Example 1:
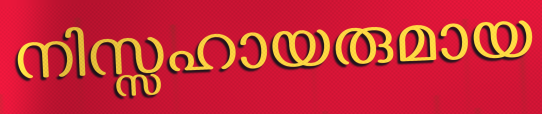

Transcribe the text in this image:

നിസ്സഹായരുമായ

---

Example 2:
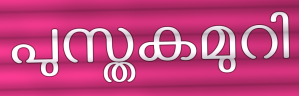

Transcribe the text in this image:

പുസ്തകമുറി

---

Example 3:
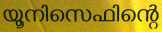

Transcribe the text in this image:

യൂനിസെഫിന്റെ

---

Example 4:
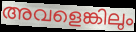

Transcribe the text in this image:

അവളെങ്കിലും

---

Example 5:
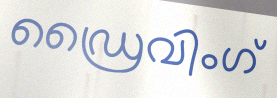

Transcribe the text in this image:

ഡ്രൈവിംഗ്